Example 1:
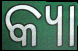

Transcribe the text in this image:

କ୍ୟା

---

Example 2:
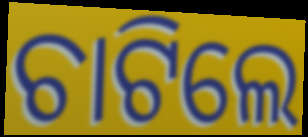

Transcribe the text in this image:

ଚାଟିଲେ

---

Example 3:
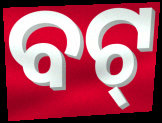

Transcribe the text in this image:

ବଟ୍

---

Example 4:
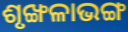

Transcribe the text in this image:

ଶୃଙ୍ଖଳାଭଙ୍ଗ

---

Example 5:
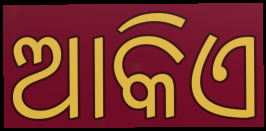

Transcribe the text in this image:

ଆକିଏ